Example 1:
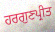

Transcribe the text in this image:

ਹਰਗੁਣਪ੍ਰੀਤ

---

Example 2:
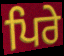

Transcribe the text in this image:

ਪਿਰੇ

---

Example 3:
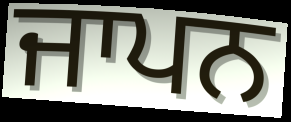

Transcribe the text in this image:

ਜਾਪਨ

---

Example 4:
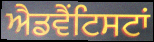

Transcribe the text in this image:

ਐਡਵੈਂਟਿਸਟਾਂ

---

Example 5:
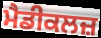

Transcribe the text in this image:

ਮੈਡੀਕਲਜ਼